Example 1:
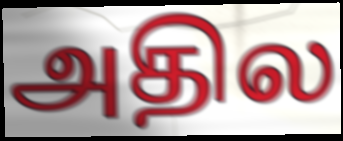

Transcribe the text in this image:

அதில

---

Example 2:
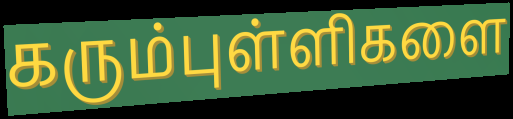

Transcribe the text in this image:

கரும்புள்ளிகளை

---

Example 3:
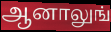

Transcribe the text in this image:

ஆனாலுங்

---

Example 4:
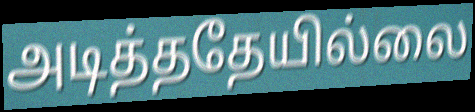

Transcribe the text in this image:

அடித்ததேயில்லை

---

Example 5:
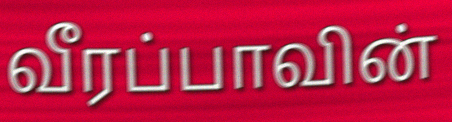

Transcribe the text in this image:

வீரப்பாவின்